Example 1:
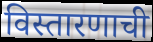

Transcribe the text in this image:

विस्तारणाची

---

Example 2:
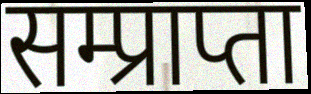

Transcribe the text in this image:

सम्प्राप्ता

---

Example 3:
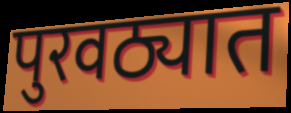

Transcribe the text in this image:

पुरवठ्यात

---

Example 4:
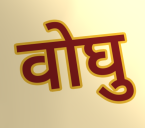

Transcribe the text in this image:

वोघु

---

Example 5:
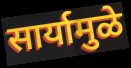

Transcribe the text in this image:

सार्यामुळे